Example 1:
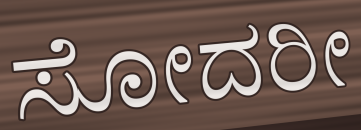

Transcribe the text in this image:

ಸೋದರೀ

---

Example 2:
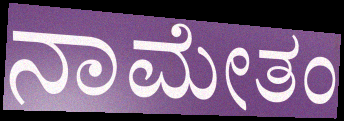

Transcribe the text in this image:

ನಾಮೇತಂ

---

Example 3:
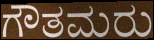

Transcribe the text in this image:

ಗೌತಮರು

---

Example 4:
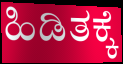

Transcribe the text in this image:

ಹಿಡಿತಕ್ಕೆ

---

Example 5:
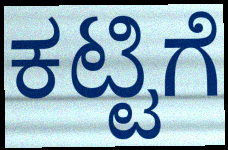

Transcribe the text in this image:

ಕಟ್ಟಿಗೆ